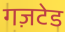
गज़टेड